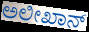
ಅಲೀಖಾನ್